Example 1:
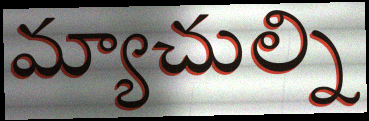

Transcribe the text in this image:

మ్యాచుల్ని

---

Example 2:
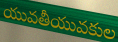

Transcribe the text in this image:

యువతీయువకుల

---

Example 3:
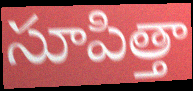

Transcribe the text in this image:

సూపిత్తా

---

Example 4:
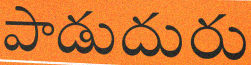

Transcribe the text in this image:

పాడుదురు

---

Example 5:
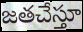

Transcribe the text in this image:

జతచేస్తూ